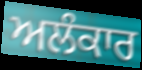
ਅਲੰਕਾਰ